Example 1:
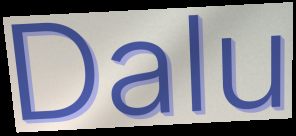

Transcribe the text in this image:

Dalu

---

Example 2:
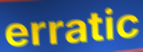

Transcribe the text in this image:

erratic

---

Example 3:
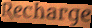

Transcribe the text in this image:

Recharge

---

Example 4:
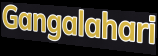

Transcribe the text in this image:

Gangalahari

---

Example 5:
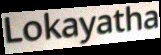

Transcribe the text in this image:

Lokayatha